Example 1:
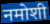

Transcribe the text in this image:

नमोशी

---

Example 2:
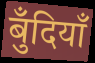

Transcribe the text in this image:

बुँदियाँ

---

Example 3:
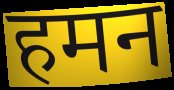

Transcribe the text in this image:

हमन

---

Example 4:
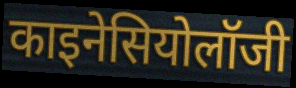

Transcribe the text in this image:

काइनेसियोलॉजी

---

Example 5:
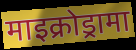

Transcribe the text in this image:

माइक्रोड्रामा